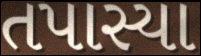
તપાસ્યા